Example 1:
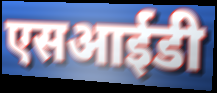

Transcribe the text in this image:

एसआईडी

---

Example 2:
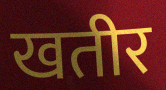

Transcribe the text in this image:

खतीर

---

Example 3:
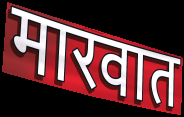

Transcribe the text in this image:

मारवात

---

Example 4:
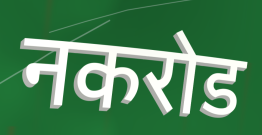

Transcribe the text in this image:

नकरोड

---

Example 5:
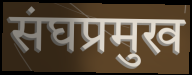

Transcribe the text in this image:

संघप्रमुख